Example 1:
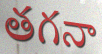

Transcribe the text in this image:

తగనా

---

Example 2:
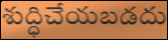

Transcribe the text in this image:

శుద్ధిచేయబడదు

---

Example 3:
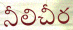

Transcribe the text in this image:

నీలిచీర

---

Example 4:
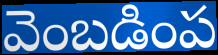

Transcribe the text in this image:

వెంబడింప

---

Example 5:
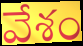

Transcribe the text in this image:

వేశం